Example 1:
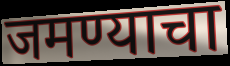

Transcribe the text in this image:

जमण्याचा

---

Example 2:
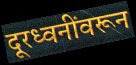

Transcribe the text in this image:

दूरध्वनींवरून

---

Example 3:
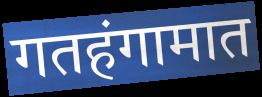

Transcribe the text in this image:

गतहंगामात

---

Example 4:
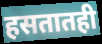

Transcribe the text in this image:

हसतातही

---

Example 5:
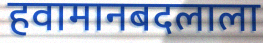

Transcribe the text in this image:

हवामानबदलाला